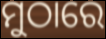
ମୁଠାରେ